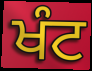
ਖੰਟ